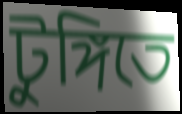
টুঙ্গিতে